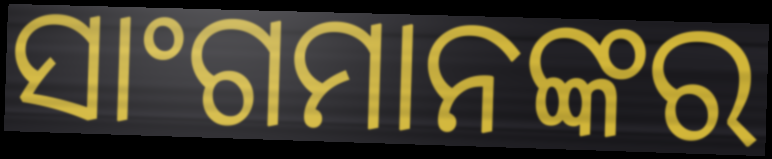
ସାଂଗମାନଙ୍କର